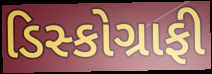
ડિસ્કોગ્રાફી